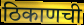
ठिकाणची